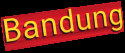
Bandung